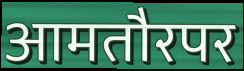
आमतौरपर